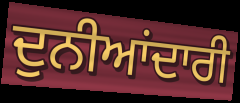
ਦੁਨੀਆਂਦਾਰੀ